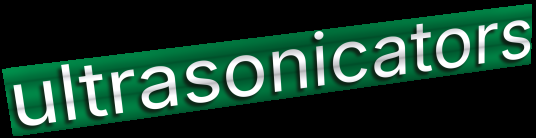
ultrasonicators